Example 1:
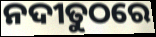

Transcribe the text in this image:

ନଦୀତୁଠରେ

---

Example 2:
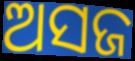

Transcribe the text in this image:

ଅସଜ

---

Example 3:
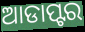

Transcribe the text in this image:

ଆଡାପ୍ଟର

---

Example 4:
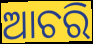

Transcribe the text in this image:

ଆଚରି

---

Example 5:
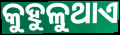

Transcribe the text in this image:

କୁହୁଳୁଥାଏ